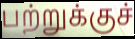
பற்றுக்குச்